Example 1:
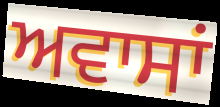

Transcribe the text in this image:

ਅਵਾਸਾਂ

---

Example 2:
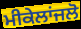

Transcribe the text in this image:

ਮੀਕੇਲਾਂਜਲੋ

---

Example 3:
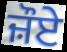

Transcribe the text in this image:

ਜ਼ੌਏ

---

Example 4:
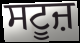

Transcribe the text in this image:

ਸਟੂਜ਼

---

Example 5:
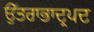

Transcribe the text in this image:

ਉੱਤਰਾਭਾਦ੍ਰਪਦ